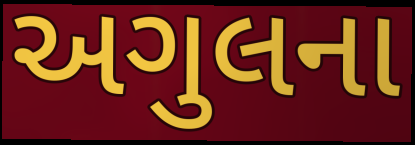
અગુલના